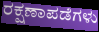
ರಕ್ಷಣಾಪಡೆಗಳು